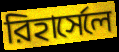
রিহার্সেলে